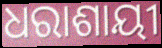
ଧରାଶାୟୀ